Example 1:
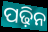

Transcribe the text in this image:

ପଢ଼ିନ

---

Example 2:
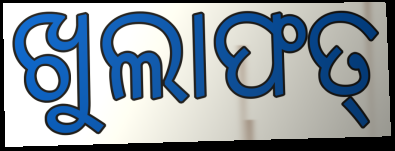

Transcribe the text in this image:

ଖୁଲାଫତ୍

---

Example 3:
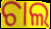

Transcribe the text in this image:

ଚାଲ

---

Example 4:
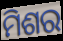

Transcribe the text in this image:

ମିଶର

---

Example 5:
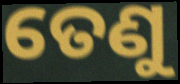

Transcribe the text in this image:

ତେଣୁ